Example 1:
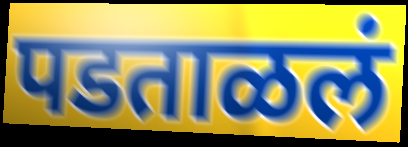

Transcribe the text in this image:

पडताळलं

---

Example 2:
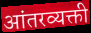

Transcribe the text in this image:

आंतरव्यक्ती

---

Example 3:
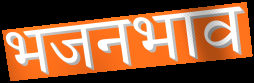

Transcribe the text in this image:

भजनभाव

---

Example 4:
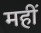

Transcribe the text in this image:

महीं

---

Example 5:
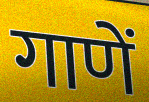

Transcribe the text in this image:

गाणें